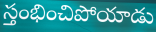
స్తంభించిపోయాడు